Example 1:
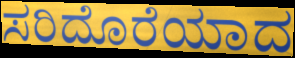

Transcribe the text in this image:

ಸರಿದೊರೆಯಾದ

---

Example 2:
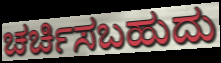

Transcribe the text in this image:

ಚರ್ಚಿಸಬಹುದು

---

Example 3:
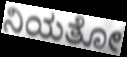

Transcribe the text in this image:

ನಿಯತೋ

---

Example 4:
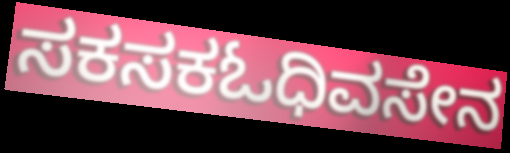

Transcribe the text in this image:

ಸಕಸಕಓಧಿವಸೇನ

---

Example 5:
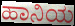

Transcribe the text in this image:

ಹಾನಿಯ